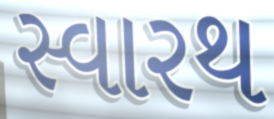
સ્વારથ